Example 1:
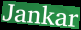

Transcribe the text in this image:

Jankar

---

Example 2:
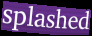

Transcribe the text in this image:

splashed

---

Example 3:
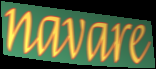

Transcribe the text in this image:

navare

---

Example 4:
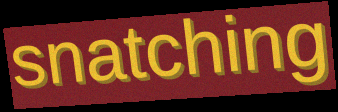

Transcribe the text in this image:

snatching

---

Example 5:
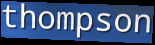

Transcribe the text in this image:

thompson